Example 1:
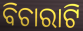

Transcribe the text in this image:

ବିଚାରାଟି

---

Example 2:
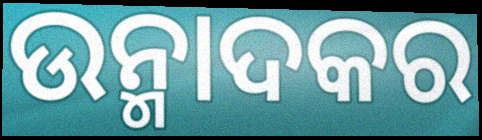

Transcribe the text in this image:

ଉନ୍ମାଦକର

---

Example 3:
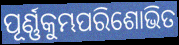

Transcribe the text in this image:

ପୂର୍ଣ୍ଣକୁମ୍ଭପରିଶୋଭିତ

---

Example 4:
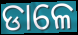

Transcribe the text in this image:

ଡାଳେ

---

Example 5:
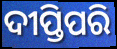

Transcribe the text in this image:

ଦୀପ୍ତିପରି